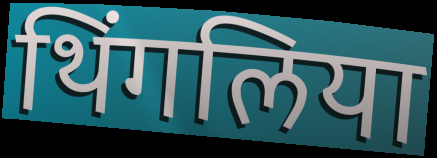
थिंगलिया